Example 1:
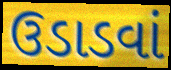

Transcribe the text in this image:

ઉડાડવાં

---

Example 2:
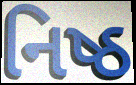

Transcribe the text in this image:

નિષ્ઠ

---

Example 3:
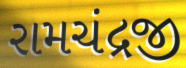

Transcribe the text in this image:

રામચંદ્રજી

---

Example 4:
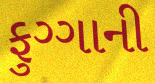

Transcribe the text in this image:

ફુગ્ગાની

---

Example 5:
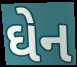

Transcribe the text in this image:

ઘેન